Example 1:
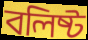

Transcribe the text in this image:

বলিষ্ট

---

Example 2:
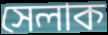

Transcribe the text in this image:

সেলাক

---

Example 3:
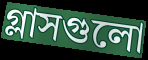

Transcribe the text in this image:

গ্লাসগুলো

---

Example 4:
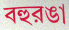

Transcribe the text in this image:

বহুরঙা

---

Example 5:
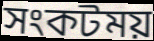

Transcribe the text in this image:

সংকটময়